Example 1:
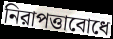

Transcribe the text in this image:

নিরাপত্তাবোধে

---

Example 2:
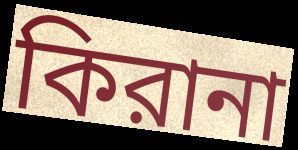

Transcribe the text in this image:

কিরানা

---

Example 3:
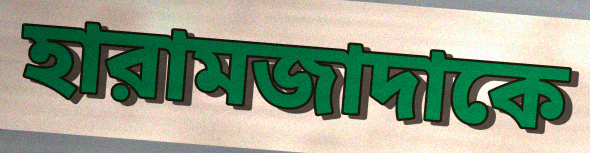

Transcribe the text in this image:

হারামজাদাকে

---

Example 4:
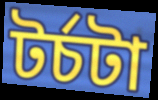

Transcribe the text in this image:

টর্চটা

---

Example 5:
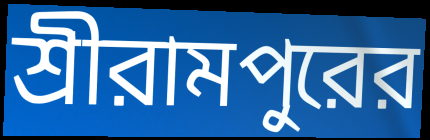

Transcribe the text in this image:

শ্রীরামপুরের